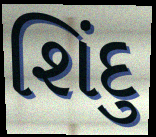
શિંદુ